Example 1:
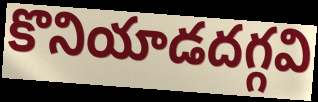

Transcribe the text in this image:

కొనియాడదగ్గవి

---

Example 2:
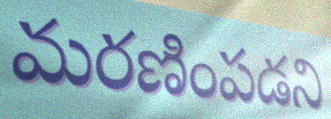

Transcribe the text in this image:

మరణింపడని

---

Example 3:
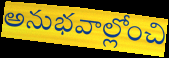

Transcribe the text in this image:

అనుభవాల్లోంచి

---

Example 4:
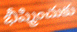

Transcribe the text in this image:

భీష్మించుకు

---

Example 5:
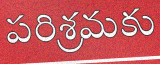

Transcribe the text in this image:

పరిశ్రమకు